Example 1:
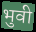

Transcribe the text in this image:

भुवी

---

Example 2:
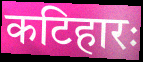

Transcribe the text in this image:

कटिहारः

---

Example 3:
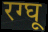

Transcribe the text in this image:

रग्घू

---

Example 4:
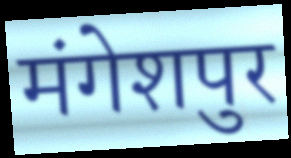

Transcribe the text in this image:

मंगेशपुर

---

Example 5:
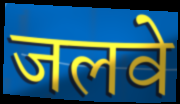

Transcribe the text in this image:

जलवे